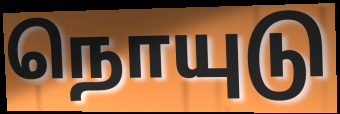
நொயுடு